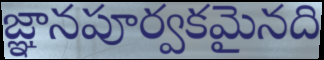
జ్ఞానపూర్వకమైనది